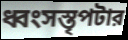
ধ্বংসস্তৃপটার